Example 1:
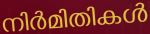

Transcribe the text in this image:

നിർമിതികൾ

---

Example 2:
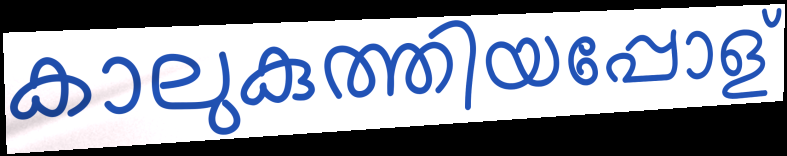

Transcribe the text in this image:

കാലുകുത്തിയപ്പോള്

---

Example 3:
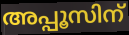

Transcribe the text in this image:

അപ്പൂസിന്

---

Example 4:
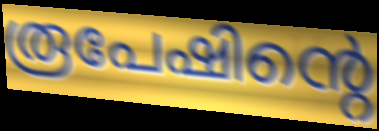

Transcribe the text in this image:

രൂപേഷിന്റെ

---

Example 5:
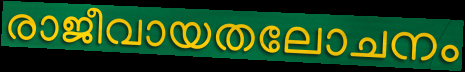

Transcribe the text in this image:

രാജീവായതലോചനം